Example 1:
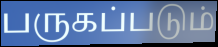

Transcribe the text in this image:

பருகப்படும்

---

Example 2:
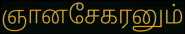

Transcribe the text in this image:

ஞானசேகரனும்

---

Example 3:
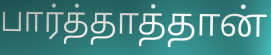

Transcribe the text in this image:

பார்த்தாத்தான்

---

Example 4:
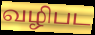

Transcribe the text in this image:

வழிபட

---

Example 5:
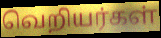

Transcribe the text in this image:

வெறியர்கள்